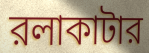
রলাকাটার